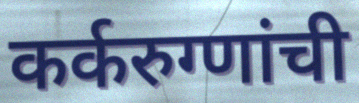
कर्करुग्णांची